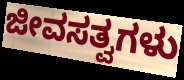
ಜೀವಸತ್ವಗಳು